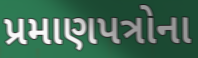
પ્રમાણપત્રોના